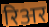
रिअर